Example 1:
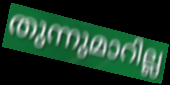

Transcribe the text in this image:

തുന്നുമാറില്ല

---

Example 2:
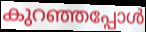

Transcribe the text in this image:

കുറഞ്ഞപ്പോൾ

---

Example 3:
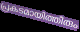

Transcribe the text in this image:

പ്രകടമായിത്തീരും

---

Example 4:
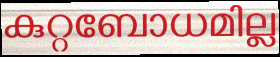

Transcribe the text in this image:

കുറ്റബോധമില്ല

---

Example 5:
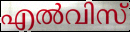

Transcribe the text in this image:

എൽവിസ്